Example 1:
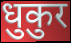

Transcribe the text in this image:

धुकुर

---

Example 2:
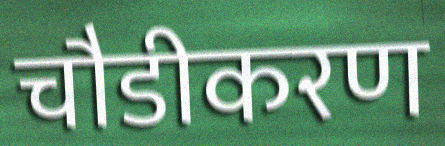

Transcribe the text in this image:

चौडीकरण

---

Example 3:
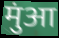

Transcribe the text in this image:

मुंआ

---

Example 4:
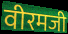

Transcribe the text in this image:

वीरमजी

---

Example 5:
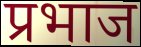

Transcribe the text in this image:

प्रभाज